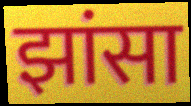
झांसा